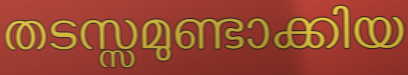
തടസ്സമുണ്ടാക്കിയ